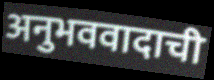
अनुभववादाची